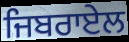
ਜਿਬਰਾਏਲ